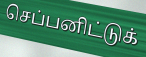
செப்பனிட்டுக்